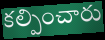
కల్పించారు